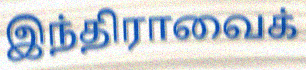
இந்திராவைக்